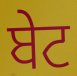
ਬੇਟ